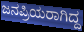
ಜನಪ್ರಿಯರಾಗಿದ್ದ